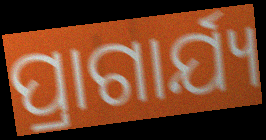
ପ୍ରାଗାର୍ଯ୍ୟ